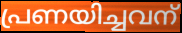
പ്രണയിച്ചവന്